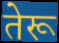
तेरू